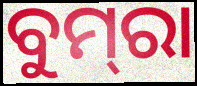
ବୁମ୍‌ରା